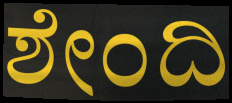
ಶೇಂದಿ